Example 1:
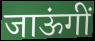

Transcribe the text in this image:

जाऊंगीं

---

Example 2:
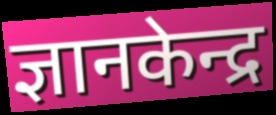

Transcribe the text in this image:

ज्ञानकेन्द्र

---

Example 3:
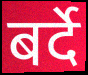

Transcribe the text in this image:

बर्दे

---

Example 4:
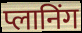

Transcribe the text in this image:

प्लानिंग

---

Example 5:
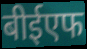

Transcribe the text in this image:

बीईएफ